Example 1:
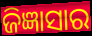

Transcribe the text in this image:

ଜିଜ୍ଞାସାର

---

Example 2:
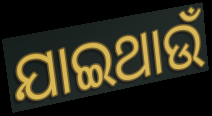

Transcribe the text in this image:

ଯାଇଥାଉଁ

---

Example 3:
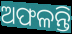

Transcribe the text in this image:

ଅଫଳନ୍ତି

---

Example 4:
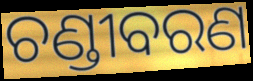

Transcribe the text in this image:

ଚଣ୍ଡୀବରଣ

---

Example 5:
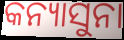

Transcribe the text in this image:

କନ୍ୟାସୁନା